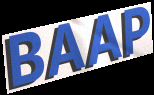
BAAP